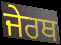
ਜੇਰਥ